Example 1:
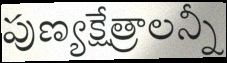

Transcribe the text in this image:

పుణ్యక్షేత్రాలన్నీ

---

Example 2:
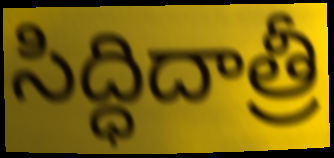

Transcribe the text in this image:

సిద్ధిదాత్రీ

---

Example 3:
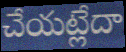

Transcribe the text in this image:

చేయట్లేదా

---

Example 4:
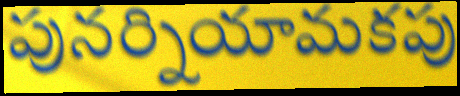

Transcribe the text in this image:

పునర్నియామకపు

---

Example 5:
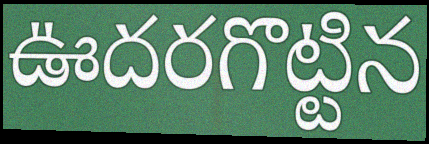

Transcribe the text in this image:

ఊదరగొట్టిన